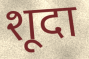
शूदा